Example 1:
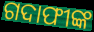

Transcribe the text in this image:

ଗଦାଫୀଙ୍କ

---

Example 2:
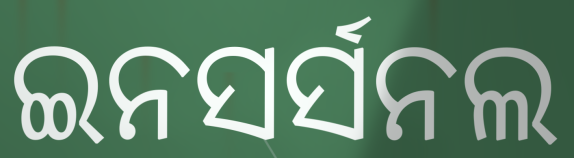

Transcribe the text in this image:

ଇନସର୍ସନଲ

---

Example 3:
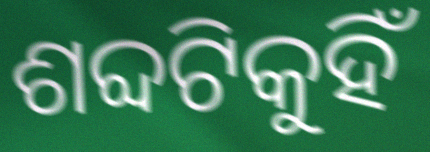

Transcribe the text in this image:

ଶବ୍ଦଟିକୁହିଁ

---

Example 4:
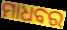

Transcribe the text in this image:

ମାଧବର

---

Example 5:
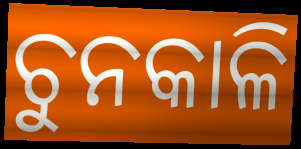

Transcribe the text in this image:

ଚୁନକାଳି